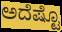
ಅದೆಷ್ಟೊ